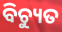
ବିଚ୍ୟୁତ